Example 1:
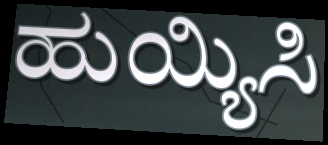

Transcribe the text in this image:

ಹುಯ್ಯಿಸಿ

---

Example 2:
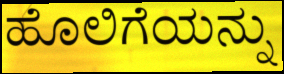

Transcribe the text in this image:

ಹೊಲಿಗೆಯನ್ನು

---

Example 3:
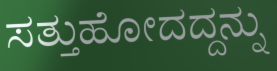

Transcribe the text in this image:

ಸತ್ತುಹೋದದ್ದನ್ನು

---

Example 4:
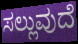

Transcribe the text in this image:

ಸಲ್ಲುವುದೆ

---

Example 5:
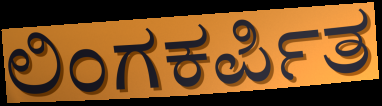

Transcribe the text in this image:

ಲಿಂಗಕರ್ಪಿತ